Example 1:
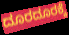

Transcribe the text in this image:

ದೂರದೂರಕ್ಕೆ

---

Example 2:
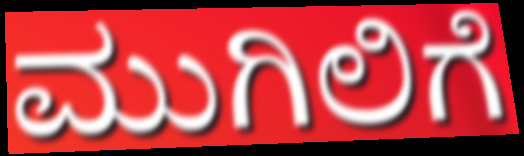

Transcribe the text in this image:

ಮುಗಿಲಿಗೆ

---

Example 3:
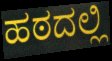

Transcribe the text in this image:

ಹಠದಲ್ಲಿ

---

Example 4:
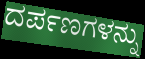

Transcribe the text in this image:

ದರ್ಪಣಗಳನ್ನು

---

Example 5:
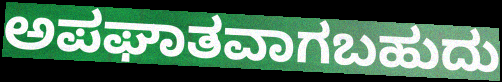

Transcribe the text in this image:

ಅಪಘಾತವಾಗಬಹುದು